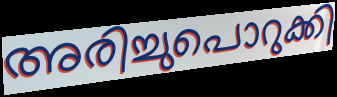
അരിച്ചുപൊറുക്കി